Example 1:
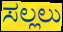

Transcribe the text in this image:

ಸಲ್ಲಲು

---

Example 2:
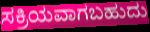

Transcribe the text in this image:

ಸಕ್ರಿಯವಾಗಬಹುದು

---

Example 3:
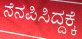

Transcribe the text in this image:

ನೆನಪಿಸಿದ್ದಕ್ಕೆ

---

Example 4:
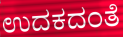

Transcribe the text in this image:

ಉದಕದಂತೆ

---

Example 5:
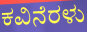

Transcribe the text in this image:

ಕವಿನೆರಳು